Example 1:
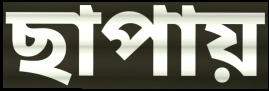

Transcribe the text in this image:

ছাপায়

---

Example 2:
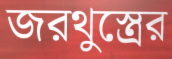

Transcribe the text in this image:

জরথুস্ত্রের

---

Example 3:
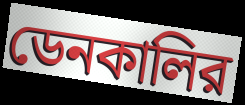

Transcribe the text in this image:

ডেনকালির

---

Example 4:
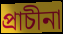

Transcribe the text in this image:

প্রাচীনা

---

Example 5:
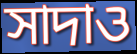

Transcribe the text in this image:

সাদাও